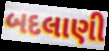
બદલાણી